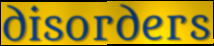
disorders